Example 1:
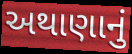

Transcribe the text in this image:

અથાણાનું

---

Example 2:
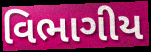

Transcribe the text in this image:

વિભાગીય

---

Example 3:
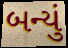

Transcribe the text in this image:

બન્યું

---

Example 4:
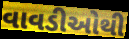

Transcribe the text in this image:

વાવડીઓથી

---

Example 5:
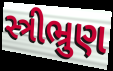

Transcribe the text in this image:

સ્ત્રીભ્રુણ